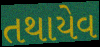
તથાયેવ